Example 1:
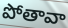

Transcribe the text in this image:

పోతావా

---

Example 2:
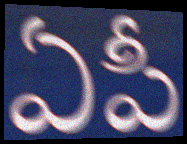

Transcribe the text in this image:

ఏపీ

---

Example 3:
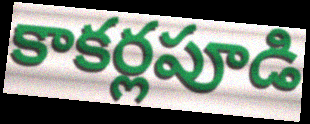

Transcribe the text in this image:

కాకర్లపూడి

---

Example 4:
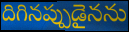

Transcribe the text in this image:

దిగినప్పుడైనను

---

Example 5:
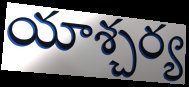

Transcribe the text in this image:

యాశ్చర్య